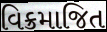
વિક્રમાજિત